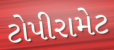
ટોપીરામેટ